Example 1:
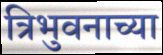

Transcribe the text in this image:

त्रिभुवनाच्या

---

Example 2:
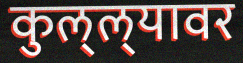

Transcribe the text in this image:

कुल्ल्यावर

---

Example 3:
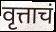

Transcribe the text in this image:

वृत्ताचं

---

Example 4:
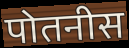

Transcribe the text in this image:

पोतनीस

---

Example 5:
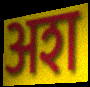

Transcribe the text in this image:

अश